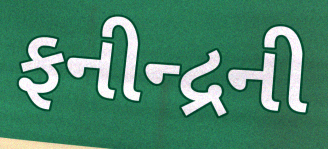
ફનીન્દ્રની